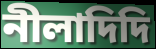
নীলাদিদি